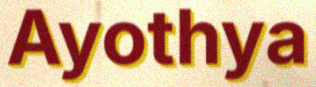
Ayothya